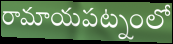
రామాయపట్నంలో